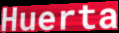
Huerta